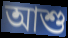
আশু